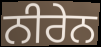
ਨੀਰੇਨ